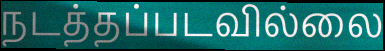
நடத்தப்படவில்லை